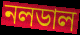
নলডাল